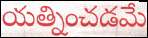
యత్నించడమే